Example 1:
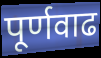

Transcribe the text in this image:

पूर्णवाढ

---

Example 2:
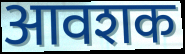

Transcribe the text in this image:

आवशक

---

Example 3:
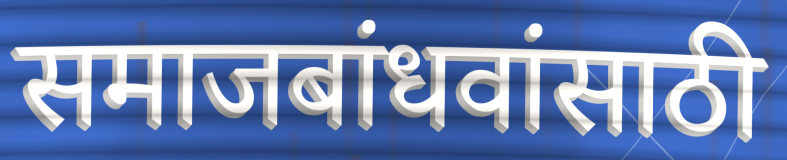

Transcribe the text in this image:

समाजबांधवांसाठी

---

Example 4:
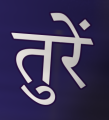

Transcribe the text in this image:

तुरें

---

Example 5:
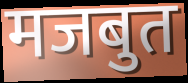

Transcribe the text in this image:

मजबुत